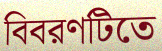
বিবরণটিতে